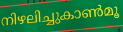
നിഴലിച്ചുകാൺമൂ